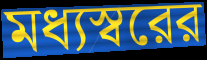
মধ্যস্বরের